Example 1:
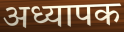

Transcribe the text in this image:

अध्‍यापक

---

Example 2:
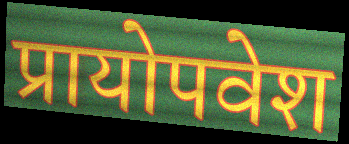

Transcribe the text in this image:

प्रायोपवेश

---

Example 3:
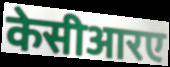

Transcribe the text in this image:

केसीआरए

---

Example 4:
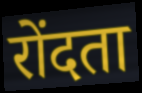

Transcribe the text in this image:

रोंदता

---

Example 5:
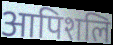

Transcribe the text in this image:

आपिशलि